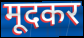
मूदकर